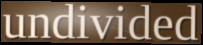
undivided